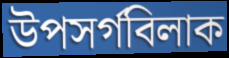
উপসৰ্গবিলাক